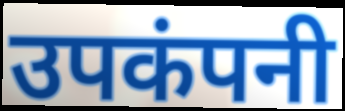
उपकंपनी